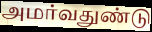
அமர்வதுண்டு